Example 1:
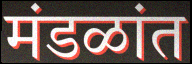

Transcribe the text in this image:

मंडळांत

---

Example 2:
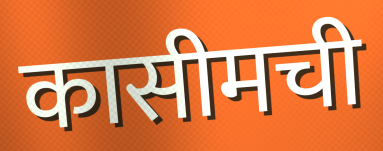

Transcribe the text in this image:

कासीमची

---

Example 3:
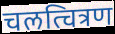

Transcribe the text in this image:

चलत्चित्रण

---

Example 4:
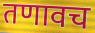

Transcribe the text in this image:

तणावच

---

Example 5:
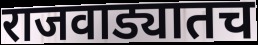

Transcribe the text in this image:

राजवाड्यातच